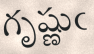
గృష్ణుఁ